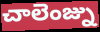
చాలెంజ్ను